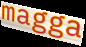
magga